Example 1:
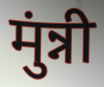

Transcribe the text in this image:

मुंन्नी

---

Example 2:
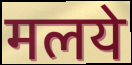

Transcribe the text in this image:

मलये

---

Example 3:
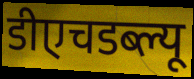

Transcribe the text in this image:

डीएचडब्ल्यू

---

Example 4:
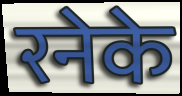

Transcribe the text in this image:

रनेके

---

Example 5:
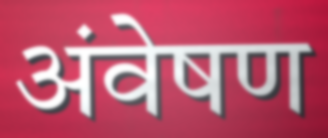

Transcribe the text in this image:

अंवेषण